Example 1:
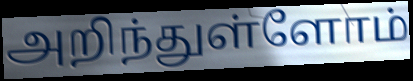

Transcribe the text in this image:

அறிந்துள்ளோம்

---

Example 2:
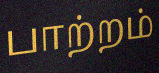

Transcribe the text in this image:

பாற்றம்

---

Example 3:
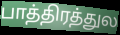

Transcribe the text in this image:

பாத்திரத்துல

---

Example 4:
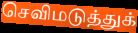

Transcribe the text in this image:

செவிமடுத்துக்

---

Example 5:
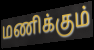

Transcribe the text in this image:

மணிக்கும்